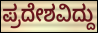
ಪ್ರದೇಶವಿದ್ದು